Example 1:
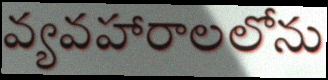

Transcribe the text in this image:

వ్యవహారాలలోను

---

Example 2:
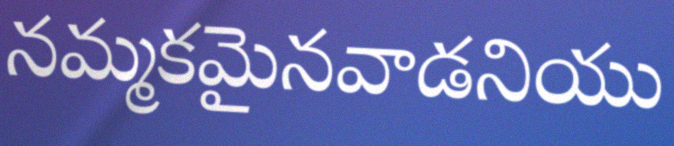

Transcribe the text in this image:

నమ్మకమైనవాడనియు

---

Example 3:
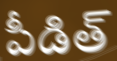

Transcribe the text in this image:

పీడిత్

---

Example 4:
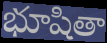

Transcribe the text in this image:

భూషితా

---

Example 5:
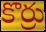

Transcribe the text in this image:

కొర్రు